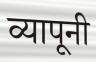
व्यापूनी